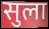
सुला